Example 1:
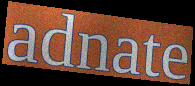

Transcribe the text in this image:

adnate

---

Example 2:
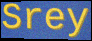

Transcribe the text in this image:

Srey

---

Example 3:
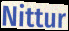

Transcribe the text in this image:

Nittur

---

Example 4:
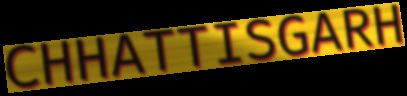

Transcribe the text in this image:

CHHATTISGARH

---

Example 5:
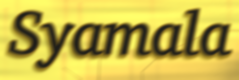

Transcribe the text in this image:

Syamala